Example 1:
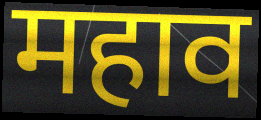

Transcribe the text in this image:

महाव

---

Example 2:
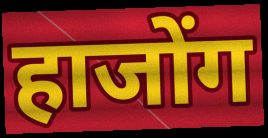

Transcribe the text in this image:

हाजोंग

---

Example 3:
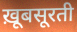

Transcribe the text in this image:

ख़ूबसूरती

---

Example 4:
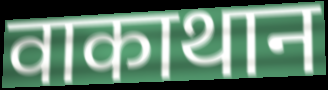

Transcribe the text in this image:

वाकाथान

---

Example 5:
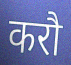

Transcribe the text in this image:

करौ